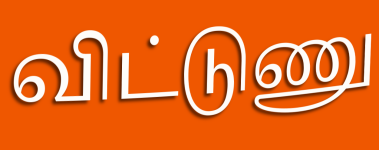
விட்டுணு